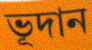
ভূদান